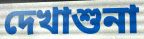
দেখাশুনা